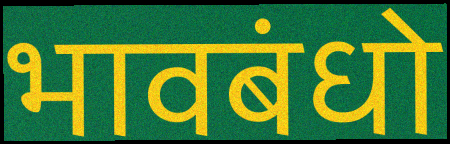
भावबंधो